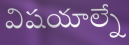
విషయాల్నే